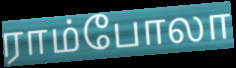
ராம்போலா